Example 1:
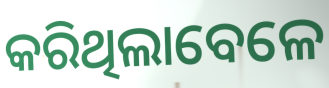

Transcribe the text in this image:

କରିଥିଲାବେଳେ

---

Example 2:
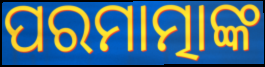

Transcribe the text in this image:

ପରମାତ୍ମାଙ୍କ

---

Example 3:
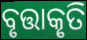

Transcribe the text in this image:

ବୃତ୍ତାକୃତି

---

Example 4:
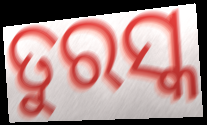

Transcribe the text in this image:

ତୁରସ୍କ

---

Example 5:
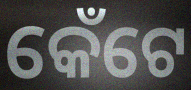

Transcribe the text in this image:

କେଁଟେ